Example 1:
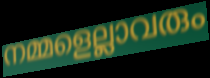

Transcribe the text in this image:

നമ്മളെല്ലാവരും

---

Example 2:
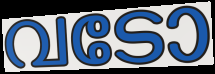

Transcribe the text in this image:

വടോ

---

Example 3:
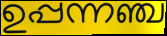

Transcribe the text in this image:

ഉപ്പന്നഞ്ച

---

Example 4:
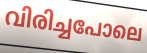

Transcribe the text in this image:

വിരിച്ചപോലെ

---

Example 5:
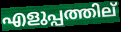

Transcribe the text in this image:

എളുപ്പത്തില്